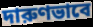
দারুণভাবে